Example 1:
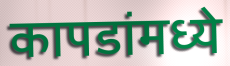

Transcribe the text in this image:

कापडांमध्ये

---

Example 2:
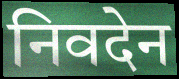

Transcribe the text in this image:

निवदेन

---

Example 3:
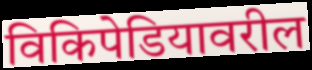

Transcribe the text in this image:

विकिपेडियावरील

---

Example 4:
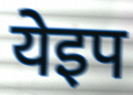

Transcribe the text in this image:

येइप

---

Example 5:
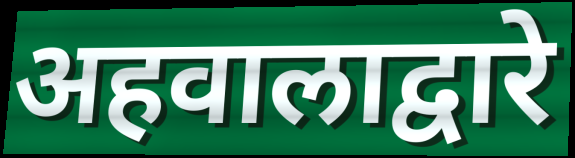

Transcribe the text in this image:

अहवालाद्वारे